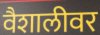
वैशालीवर